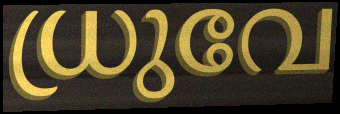
ധ്രുവേ